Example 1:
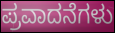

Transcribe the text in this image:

ಪ್ರವಾದನೆಗಳು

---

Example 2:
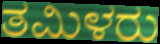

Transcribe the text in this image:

ತಮಿಳರು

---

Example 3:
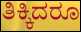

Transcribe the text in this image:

ತಿಕ್ಕಿದರೂ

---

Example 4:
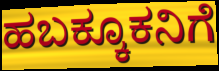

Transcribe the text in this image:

ಹಬಕ್ಕೂಕನಿಗೆ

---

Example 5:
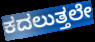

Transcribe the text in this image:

ಕದಲುತ್ತಲೇ